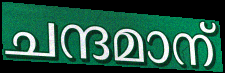
ചന്ദമാന്